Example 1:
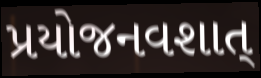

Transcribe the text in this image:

પ્રયોજનવશાત્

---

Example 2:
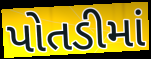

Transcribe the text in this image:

પોતડીમાં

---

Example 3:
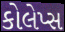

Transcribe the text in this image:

કોલેપ્સ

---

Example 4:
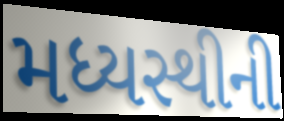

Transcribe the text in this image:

મધ્યસ્થીની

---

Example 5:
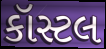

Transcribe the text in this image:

કૉસ્ટલ